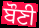
ਬੌਣੀ